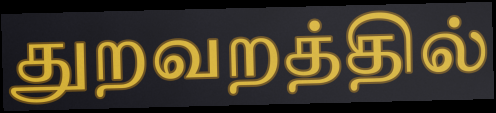
துறவறத்தில்